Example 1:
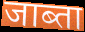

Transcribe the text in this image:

जाब्ता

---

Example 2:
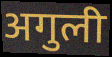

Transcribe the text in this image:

अगुली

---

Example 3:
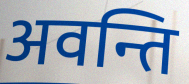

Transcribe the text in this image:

अवन्ति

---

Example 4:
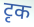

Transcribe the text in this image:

टृक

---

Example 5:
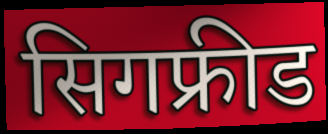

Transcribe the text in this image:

सिगफ्रीड